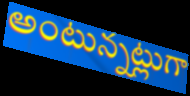
అంటున్నట్లుగా